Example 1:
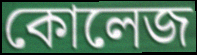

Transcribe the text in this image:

কোলেজ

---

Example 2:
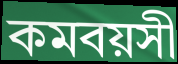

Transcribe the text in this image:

কমবয়সী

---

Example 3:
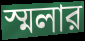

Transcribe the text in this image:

স্মলার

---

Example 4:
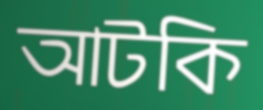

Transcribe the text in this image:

আটকি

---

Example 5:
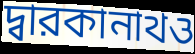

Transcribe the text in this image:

দ্বারকানাথও